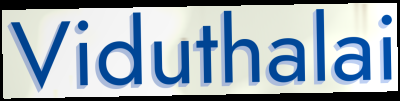
Viduthalai